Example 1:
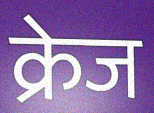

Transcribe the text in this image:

क्रेज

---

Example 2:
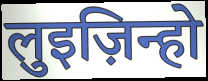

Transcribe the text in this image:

लुइज़िन्हो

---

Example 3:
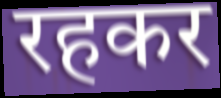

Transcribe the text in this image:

रहकर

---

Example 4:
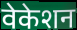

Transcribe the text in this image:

वेकेशन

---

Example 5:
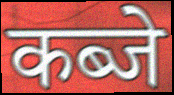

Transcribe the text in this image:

कब्जे